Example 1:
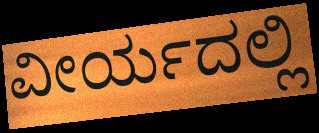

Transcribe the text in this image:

ವೀರ್ಯದಲ್ಲಿ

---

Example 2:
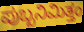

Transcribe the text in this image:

ಪುಬ್ಬನಿಮಿತ್ತಂ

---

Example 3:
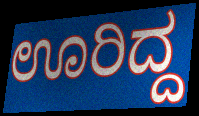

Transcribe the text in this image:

ಊರಿದ್ದ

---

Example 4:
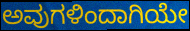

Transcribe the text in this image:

ಅವುಗಳಿಂದಾಗಿಯೇ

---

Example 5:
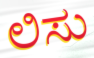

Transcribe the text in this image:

ಲಿಸು